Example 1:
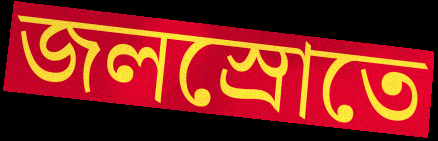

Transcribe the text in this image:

জলস্রোতে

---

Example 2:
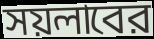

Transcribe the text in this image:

সয়লাবের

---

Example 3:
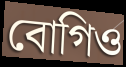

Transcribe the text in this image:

বোগিও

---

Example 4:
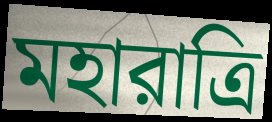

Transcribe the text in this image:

মহারাত্রি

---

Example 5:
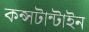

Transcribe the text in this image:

কন্সটান্টাইন